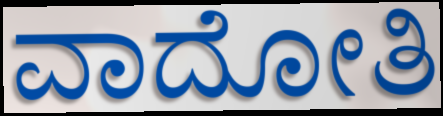
ವಾದೋತಿ